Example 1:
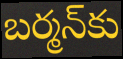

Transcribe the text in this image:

బర్మన్‌కు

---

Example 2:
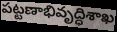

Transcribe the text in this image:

పట్టణాభివృద్ధిశాఖ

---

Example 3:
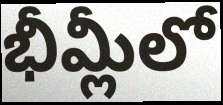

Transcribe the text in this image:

భీమ్లీలో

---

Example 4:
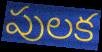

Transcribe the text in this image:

పులక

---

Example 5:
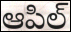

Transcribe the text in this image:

ఆపిల్